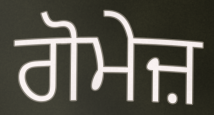
ਗੋਮੇਜ਼